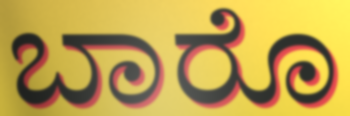
ಬಾರೊ